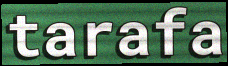
tarafa